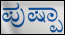
ಪುಷ್ಪಾ